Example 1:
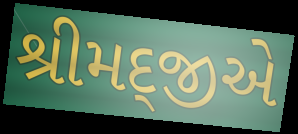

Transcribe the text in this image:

શ્રીમદ્જીએ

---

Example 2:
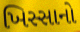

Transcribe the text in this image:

ખિસ્સાનો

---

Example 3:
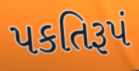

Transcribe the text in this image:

પકતિરૂપં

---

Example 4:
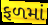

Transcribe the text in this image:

ફળમાં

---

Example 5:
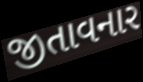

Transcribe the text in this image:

જીતાવનાર